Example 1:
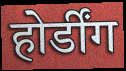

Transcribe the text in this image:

होर्डींग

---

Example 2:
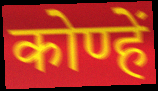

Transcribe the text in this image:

कोण्हें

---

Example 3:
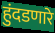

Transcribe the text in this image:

हुंदडणारे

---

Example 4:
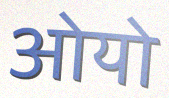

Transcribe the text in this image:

ओयो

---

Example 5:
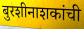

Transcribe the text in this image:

बुरशीनाशकांची